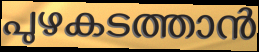
പുഴകടത്താൻ